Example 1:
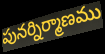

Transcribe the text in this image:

పునర్నిర్మాణము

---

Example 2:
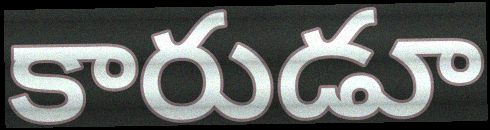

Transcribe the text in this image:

కారుడూ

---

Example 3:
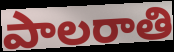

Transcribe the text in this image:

పాలరాతి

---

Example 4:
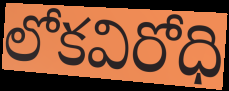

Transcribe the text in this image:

లోకవిరోధి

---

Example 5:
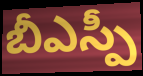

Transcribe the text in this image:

బీఎస్పీ